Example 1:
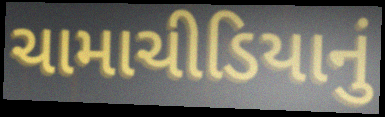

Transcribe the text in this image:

ચામાચીડિયાનું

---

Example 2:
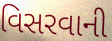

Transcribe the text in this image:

વિસરવાની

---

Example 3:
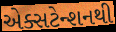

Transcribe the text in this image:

એક્સટેન્શનથી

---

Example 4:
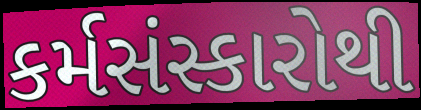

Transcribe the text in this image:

કર્મસંસ્કારોથી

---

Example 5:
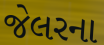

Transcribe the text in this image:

જેલરના